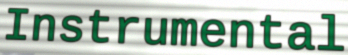
Instrumental